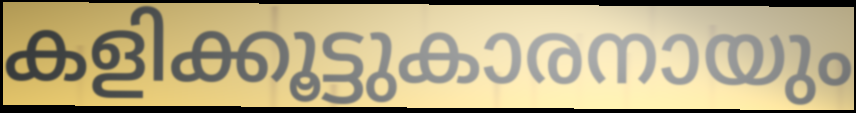
കളിക്കൂട്ടുകാരനായും